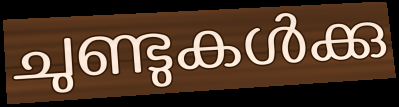
ചുണ്ടുകൾക്കു